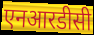
एनआरडीसी